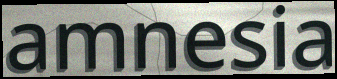
amnesia